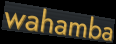
wahamba